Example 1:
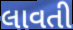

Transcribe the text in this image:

લાવતી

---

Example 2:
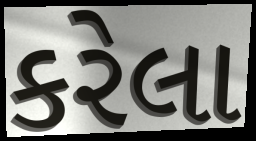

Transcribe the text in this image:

કરેલા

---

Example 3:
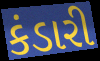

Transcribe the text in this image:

કંડારી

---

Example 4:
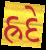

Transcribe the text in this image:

હ્રદે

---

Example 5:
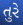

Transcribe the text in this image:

તુરે